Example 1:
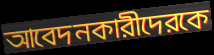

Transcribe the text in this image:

আবেদনকারীদেরকে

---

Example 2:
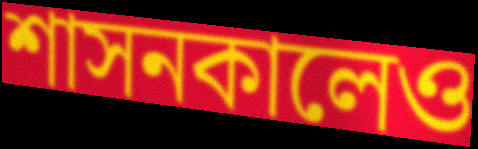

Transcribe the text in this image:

শাসনকালেও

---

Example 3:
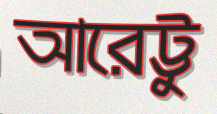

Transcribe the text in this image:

আরেট্টু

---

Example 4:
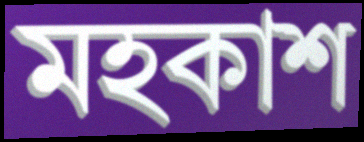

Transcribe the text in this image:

মহকাশ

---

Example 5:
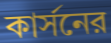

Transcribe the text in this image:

কার্সনের